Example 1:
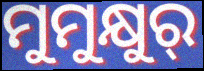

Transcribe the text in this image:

ମୁମୁକ୍ଷୁର୍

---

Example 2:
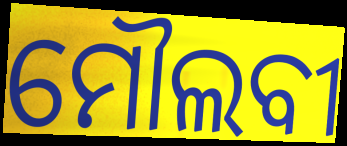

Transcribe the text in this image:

ମୌଲବୀ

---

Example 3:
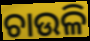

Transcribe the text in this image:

ଚାଉଳି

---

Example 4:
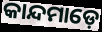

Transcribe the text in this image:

କାନ୍ଦମାଡ଼େ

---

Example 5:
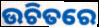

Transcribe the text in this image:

ଉଚିତରେ